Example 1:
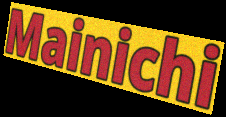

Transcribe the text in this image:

Mainichi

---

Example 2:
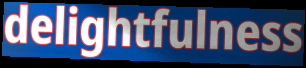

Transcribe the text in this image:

delightfulness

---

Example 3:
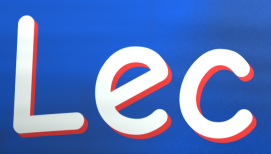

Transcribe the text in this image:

Lec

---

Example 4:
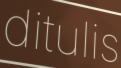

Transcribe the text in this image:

ditulis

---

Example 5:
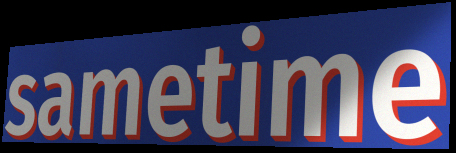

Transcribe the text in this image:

sametime